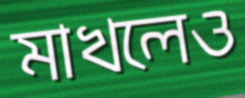
মাখলেও